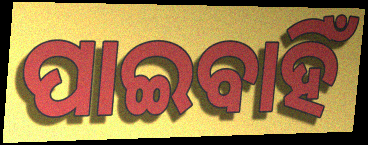
ପାଇବାହିଁ